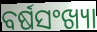
ବର୍ଷସଂଖ୍ୟା